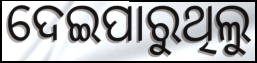
ଦେଇପାରୁଥିଲୁ